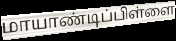
மாயாண்டிப்பிள்ளை